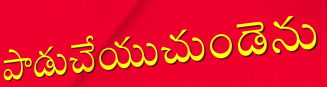
పాడుచేయుచుండెను